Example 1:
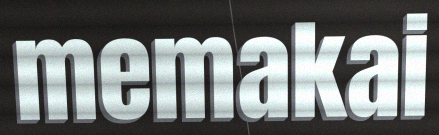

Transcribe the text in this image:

memakai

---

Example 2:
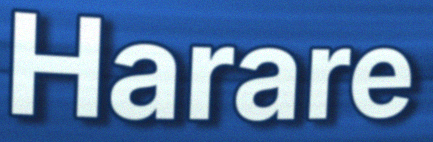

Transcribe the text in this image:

Harare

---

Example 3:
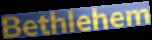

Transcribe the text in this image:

Bethlehem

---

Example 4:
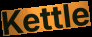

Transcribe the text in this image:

Kettle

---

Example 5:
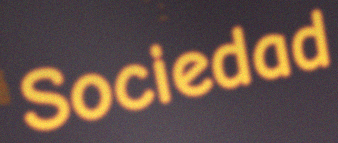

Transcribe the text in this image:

Sociedad